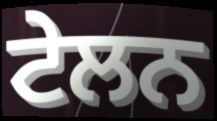
ਟੇਲਨ